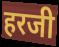
हरजी